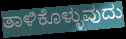
ತಾಳಿಕೊಳ್ಳುವುದು